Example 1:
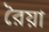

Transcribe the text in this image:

রৈয়া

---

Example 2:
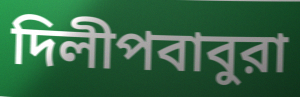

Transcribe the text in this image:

দিলীপবাবুরা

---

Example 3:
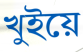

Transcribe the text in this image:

খুইয়ে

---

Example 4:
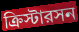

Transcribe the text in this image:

ক্রিস্টারসন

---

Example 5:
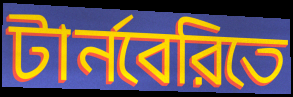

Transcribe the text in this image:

টার্নবেরিতে